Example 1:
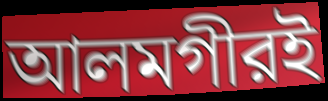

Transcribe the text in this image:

আলমগীরই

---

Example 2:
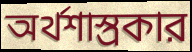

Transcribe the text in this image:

অর্থশাস্ত্রকার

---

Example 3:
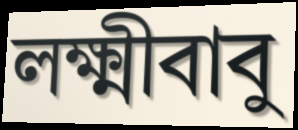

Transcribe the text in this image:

লক্ষ্মীবাবু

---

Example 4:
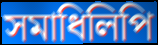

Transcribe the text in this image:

সমাধিলিপি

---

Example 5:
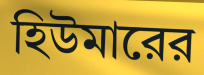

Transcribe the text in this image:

হিউমারের